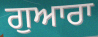
ਗੁਆਰਾ